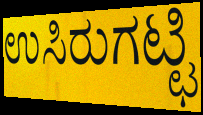
ಉಸಿರುಗಟ್ಟಿ